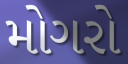
મોગરો